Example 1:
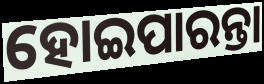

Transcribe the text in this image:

ହୋଇପାରନ୍ତା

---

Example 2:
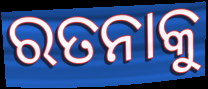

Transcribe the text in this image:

ରତନାକୁ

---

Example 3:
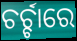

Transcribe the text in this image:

ଚର୍ଚ୍ଚାରେ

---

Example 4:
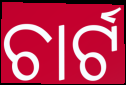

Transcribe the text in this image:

ଚାର୍ଟ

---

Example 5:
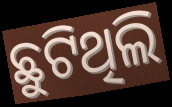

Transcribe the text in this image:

ଛୁଟିଥିଲି